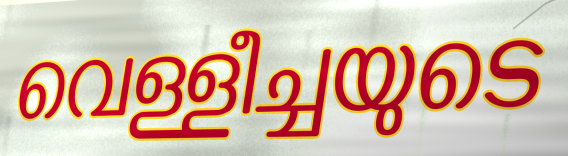
വെള്ളീച്ചയുടെ